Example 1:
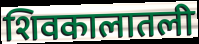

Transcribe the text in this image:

शिवकालातली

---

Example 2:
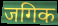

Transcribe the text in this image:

जगिक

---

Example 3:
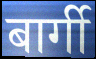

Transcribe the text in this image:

बार्गी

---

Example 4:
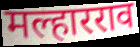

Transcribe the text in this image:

मल्हारराव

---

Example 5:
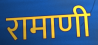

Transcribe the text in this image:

रामाणी